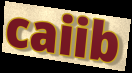
caiib